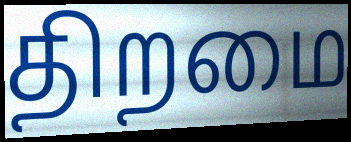
திறமை